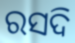
ରସଦି